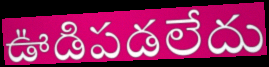
ఊడిపడలేదు